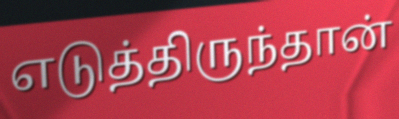
எடுத்திருந்தான்